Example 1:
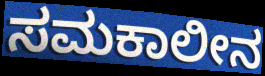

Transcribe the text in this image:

ಸಮಕಾಲೀನ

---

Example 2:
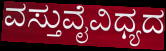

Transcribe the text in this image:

ವಸ್ತುವೈವಿಧ್ಯದ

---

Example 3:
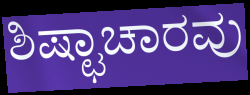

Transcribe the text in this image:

ಶಿಷ್ಟಾಚಾರವು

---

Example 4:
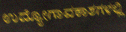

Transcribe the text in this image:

ಉದ್ಯೋಗಾವಕಾಶಗಳಲ್ಲಿ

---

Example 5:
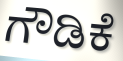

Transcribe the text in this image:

ಗೌಡಿಕೆ